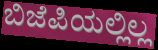
ಬಿಜೆಪಿಯಲ್ಲಿಲ್ಲ